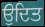
ਉਦਿਤ